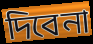
দিবেনা